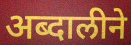
अब्दालीने